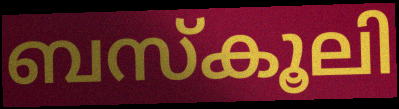
ബസ്കൂലി